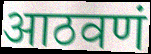
आठवणं